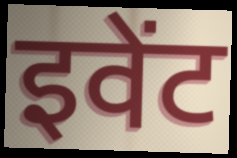
इवेंट